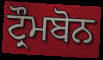
ਟ੍ਰੌਮਬੋਨ